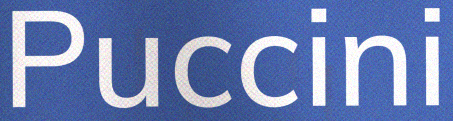
Puccini